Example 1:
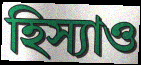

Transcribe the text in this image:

হিস্যাও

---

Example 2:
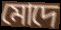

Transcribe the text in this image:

মোদে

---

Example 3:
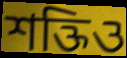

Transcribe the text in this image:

শক্তিও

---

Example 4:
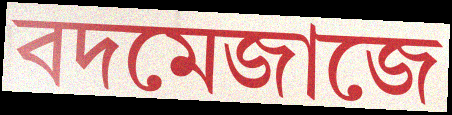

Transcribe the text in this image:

বদমেজাজে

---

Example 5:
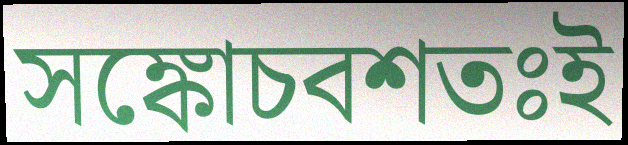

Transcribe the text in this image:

সঙ্কোচবশতঃই